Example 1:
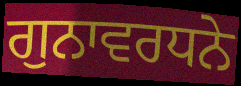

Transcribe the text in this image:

ਗੁਨਾਵਰਧਨੇ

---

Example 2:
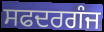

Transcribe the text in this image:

ਸਫਦਰਗੰਜ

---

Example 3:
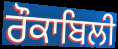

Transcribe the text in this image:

ਰੌਕਾਬਿਲੀ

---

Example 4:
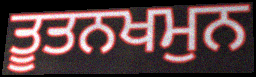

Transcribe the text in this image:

ਤੂਤਨਖਮੁਨ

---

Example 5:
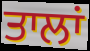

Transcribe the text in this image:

ਤਾਲਾਂ